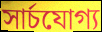
সার্চযোগ্য